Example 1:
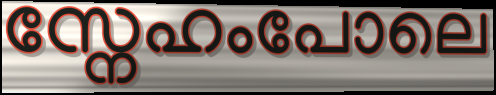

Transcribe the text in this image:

സ്നേഹംപോലെ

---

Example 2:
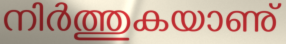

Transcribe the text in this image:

നിർത്തുകയാണു്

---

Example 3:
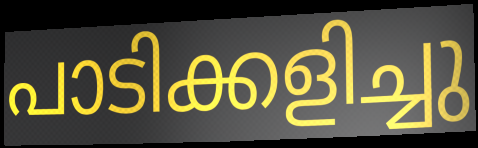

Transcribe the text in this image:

പാടിക്കളിച്ചു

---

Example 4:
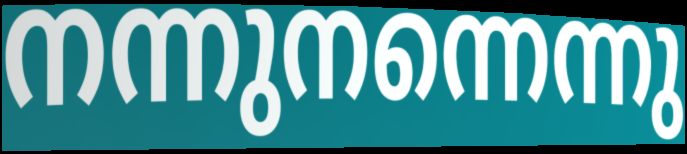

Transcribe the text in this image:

നന്നുനന്നെന്നു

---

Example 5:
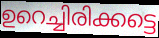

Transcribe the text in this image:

ഉറെച്ചിരിക്കട്ടെ